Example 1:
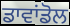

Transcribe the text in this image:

ਡਾਵਾਂਡੋਲ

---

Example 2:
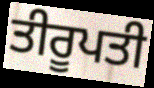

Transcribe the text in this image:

ਤੀਰੂਪਤੀ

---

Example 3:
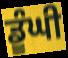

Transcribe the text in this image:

ਡੂੰਘੀ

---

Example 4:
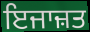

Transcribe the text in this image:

ਇਜਾਜ਼ਤ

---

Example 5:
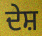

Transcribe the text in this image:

ਦੇਸ਼